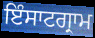
ਇੰਸਾਟਗ੍ਰਾਮ